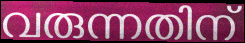
വരുന്നതിന്